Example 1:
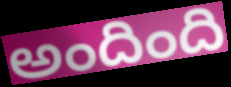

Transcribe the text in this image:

అందింది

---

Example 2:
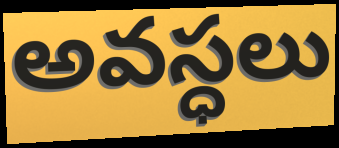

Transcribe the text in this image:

అవస్ధలు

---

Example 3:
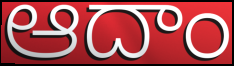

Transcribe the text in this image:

ఆదాం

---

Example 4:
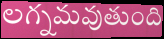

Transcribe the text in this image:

లగ్నమవుతుంది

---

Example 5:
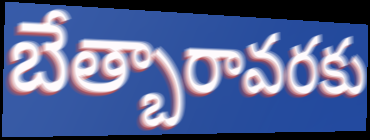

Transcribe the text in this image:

బేత్బారావరకు